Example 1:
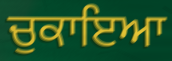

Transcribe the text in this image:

ਚੁਕਾਇਆ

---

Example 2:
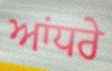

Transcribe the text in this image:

ਆਂਧਰੇ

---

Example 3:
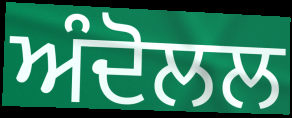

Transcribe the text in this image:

ਅੰਦੋਲਲ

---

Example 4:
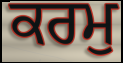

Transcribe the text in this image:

ਕਰਮੁ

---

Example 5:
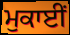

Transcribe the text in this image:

ਮੁਕਾਈਂ